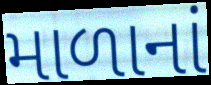
માળાનાં